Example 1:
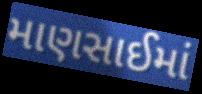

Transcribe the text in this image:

માણસાઈમાં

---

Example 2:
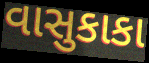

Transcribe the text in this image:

વાસુકાકા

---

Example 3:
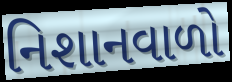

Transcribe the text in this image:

નિશાનવાળો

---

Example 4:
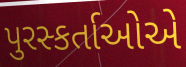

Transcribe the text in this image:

પુરસ્કર્તાઓએ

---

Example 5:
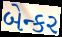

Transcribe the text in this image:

બેન્કર